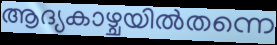
ആദ്യകാഴ്ചയിൽതന്നെ